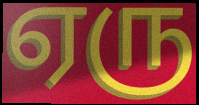
ஏரு